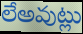
లేఅవుట్లు